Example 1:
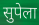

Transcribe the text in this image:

सुपेला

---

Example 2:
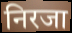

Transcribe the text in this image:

निरजा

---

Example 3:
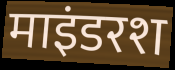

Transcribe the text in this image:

माइंडरश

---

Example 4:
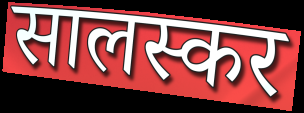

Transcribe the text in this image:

सालस्कर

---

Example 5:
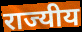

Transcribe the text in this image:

राज्यीय